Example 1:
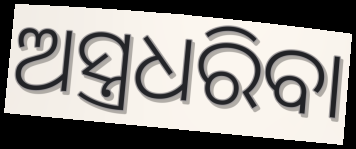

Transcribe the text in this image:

ଅସ୍ତ୍ରଧରିବା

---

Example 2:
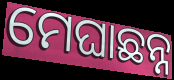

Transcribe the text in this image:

ମେଘାଛନ୍ନ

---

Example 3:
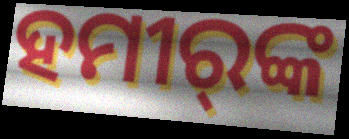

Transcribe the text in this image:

ହମୀର୍‍ଙ୍କ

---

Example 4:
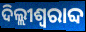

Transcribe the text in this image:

ଦିଲ୍ଲୀଶ୍ୱରାବ୍ଦ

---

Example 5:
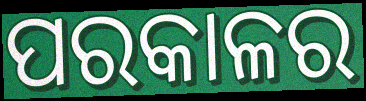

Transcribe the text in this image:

ପରକାଳର